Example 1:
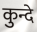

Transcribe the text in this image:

कुन्दे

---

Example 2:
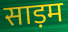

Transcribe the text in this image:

साड़म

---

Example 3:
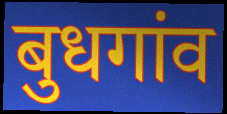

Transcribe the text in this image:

बुधगांव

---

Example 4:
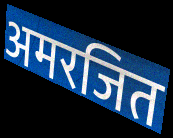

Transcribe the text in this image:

अमरजित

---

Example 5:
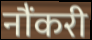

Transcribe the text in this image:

नौंकरी